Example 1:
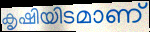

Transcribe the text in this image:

കൃഷിയിടമാണ്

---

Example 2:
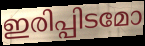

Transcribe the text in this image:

ഇരിപ്പിടമോ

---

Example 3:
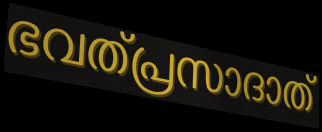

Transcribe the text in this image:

ഭവത്പ്രസാദാത്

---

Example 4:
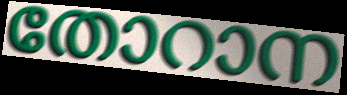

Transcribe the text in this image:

തോറാന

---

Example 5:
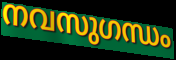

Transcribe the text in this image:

നവസുഗന്ധം